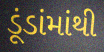
ડૂંડાંમાંથી